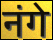
नंगे